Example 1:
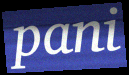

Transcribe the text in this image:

pani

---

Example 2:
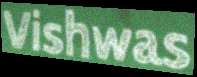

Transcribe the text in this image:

Vishwas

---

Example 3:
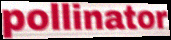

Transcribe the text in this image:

pollinator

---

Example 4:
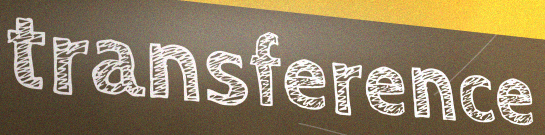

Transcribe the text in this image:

transference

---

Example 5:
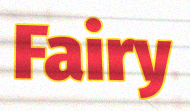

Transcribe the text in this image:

Fairy